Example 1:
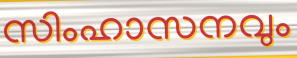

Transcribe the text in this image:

സിംഹാസനവും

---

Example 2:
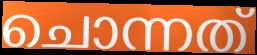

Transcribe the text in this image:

ചൊന്നത്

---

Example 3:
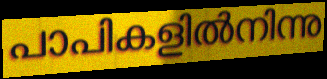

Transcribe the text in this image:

പാപികളിൽനിന്നു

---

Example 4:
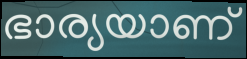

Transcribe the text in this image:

ഭാര്യയാണ്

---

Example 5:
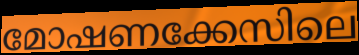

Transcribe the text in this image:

മോഷണക്കേസിലെ